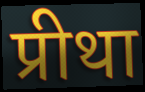
प्रीथा